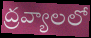
ద్రవ్యాలలో